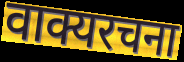
वाक्यरचना